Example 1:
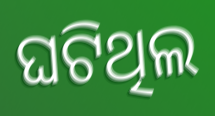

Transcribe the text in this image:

ଘଟିଥିଲ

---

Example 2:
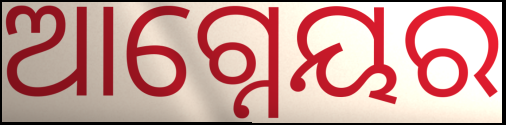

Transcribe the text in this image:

ଆଗ୍ନେୟର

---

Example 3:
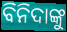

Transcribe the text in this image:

ବିନିଦାଙ୍କୁ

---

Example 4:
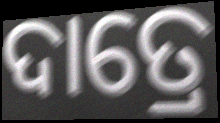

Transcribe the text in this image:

ଦାତ୍ରେ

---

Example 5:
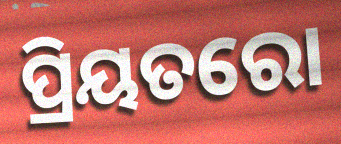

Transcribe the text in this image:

ପ୍ରିୟତରୋ